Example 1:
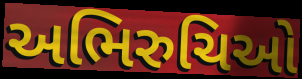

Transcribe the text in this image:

અભિરુચિઓ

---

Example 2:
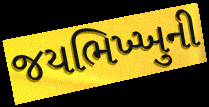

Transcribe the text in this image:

જયભિખ્ખુની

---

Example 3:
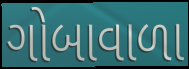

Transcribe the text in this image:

ગોબાવાળા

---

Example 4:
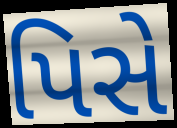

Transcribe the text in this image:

પિસે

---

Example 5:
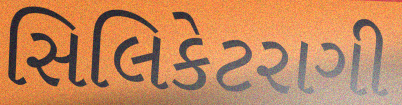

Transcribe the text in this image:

સિલિકેટરાગી